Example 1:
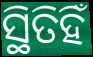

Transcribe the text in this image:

ସ୍ଥିତିହିଁ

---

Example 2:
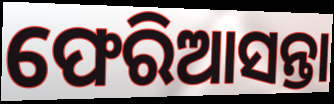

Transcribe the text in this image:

ଫେରିଆସନ୍ତା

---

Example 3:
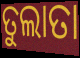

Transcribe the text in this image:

ତୁଲାତା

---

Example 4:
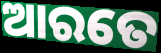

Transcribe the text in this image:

ଆରତେ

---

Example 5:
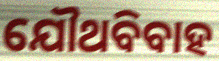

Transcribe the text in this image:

ଯୌଥବିବାହ